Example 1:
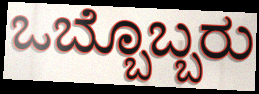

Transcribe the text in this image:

ಒಬ್ಬೊಬ್ಬರು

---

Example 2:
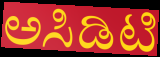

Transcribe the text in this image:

ಅಸಿಡಿಟಿ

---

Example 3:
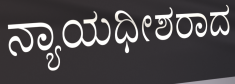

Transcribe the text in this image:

ನ್ಯಾಯಧೀಶರಾದ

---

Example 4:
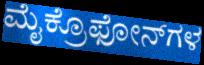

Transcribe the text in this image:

ಮೈಕ್ರೊಫೋನ್‌ಗಳ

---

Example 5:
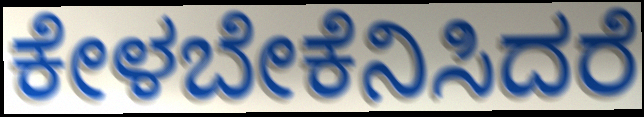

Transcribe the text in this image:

ಕೇಳಬೇಕೆನಿಸಿದರೆ